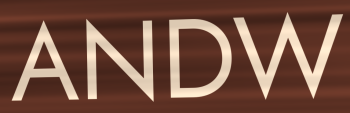
ANDW